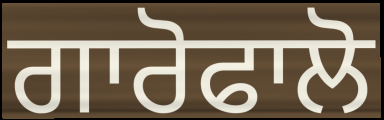
ਗਾਰੋਫਾਲੋ